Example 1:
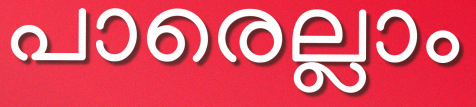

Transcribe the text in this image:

പാരെല്ലാം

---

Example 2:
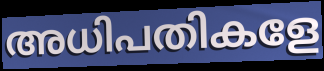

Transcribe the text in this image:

അധിപതികളേ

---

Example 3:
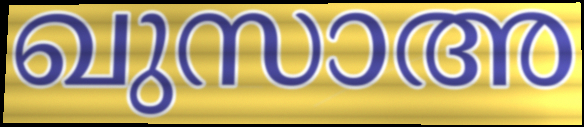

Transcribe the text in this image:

ഖുസാഅ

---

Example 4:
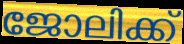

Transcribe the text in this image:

ജോലിക്ക്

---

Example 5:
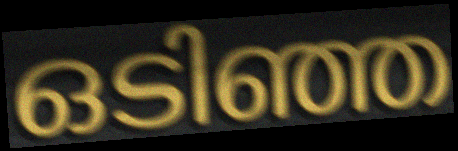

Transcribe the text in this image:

ഒടിഞ്ഞ